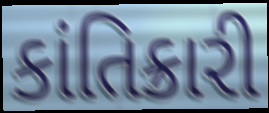
કાંતિક્રારી